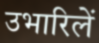
उभारिलें